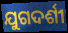
ଯୁଗଦର୍ଶୀ